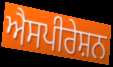
ਐਸਪੀਰੇਸ਼ਨ